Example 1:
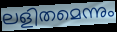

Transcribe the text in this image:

ലളിതമെന്നും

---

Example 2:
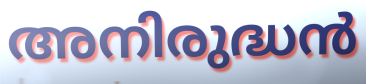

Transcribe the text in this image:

അനിരുദ്ധൻ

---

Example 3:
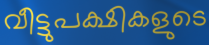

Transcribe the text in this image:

വീട്ടുപക്ഷികളുടെ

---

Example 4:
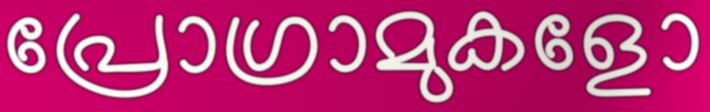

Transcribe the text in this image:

പ്രോഗ്രാമുകളോ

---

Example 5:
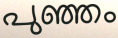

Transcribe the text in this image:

പുഞ്ഞം